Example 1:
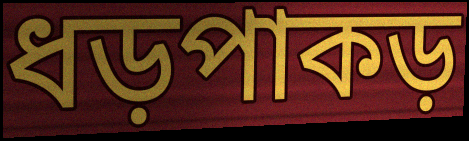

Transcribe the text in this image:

ধড়পাকড়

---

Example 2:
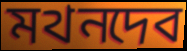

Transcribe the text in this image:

মথনদেব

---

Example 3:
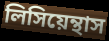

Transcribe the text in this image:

লিসিয়েন্থাস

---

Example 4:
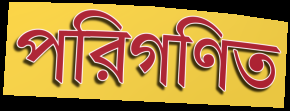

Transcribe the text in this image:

পরিগণিত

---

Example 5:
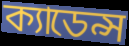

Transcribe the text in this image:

ক্যাডেন্স